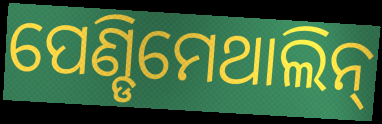
ପେଣ୍ଡିମେଥାଲିନ୍